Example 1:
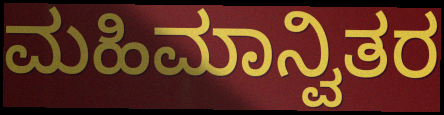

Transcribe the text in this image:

ಮಹಿಮಾನ್ವಿತರ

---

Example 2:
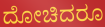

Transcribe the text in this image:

ದೋಚಿದರೂ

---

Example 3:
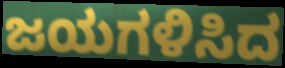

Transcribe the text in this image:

ಜಯಗಳಿಸಿದ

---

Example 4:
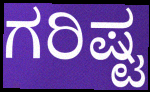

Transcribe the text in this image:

ಗರಿಷ್ಟ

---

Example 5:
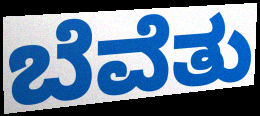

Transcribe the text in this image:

ಬೆವೆತು